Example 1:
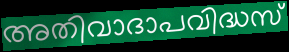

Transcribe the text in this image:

അതിവാദാപവിദ്ധസ്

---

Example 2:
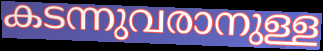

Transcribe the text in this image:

കടന്നുവരാനുള്ള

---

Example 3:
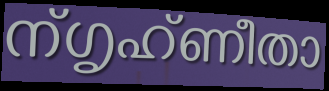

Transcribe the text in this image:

ന്ഗൃഹ്ണീതാ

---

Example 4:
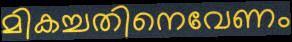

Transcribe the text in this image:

മികച്ചതിനെവേണം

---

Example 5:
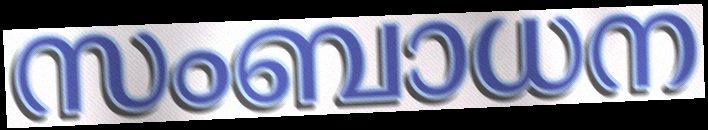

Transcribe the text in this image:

സംബാധന